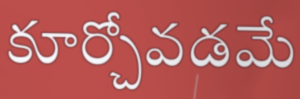
కూర్చోవడమే